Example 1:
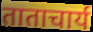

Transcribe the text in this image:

ताताचार्य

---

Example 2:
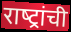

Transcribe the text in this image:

राष्ट्रांची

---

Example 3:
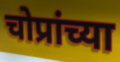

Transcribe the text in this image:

चोप्रांच्या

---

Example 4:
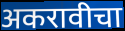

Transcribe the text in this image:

अकरावीचा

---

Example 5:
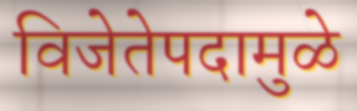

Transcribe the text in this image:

विजेतेपदामुळे